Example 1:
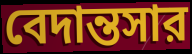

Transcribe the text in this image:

বেদান্তসার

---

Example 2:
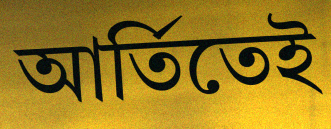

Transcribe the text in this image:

আর্তিতেই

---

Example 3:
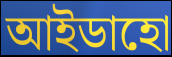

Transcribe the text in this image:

আইডাহো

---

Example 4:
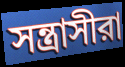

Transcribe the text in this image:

সন্ত্রাসীরা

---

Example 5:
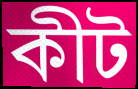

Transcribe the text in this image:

কীট